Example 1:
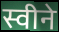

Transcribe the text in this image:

स्वीने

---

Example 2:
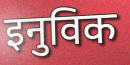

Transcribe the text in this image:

इनुविक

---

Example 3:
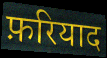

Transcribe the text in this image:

फ़रियाद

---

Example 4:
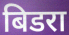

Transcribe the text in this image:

बिडरा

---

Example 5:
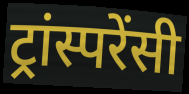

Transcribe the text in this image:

ट्रांस्परेंसी